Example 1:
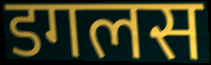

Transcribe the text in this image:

डगलस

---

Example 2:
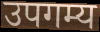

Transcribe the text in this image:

उपगम्य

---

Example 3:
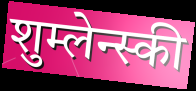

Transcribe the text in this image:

शुम्लेन्स्की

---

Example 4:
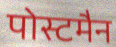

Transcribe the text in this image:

पोस्टमैन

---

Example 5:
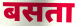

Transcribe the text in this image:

बसता